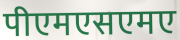
पीएमएसएमए